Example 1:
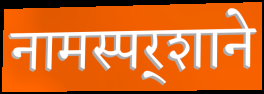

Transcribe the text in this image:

नामस्पर्शाने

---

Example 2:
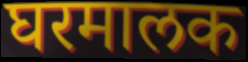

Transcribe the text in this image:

घरमालक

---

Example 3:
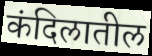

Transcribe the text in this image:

कंदिलातील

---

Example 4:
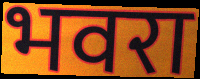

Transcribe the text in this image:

भवरा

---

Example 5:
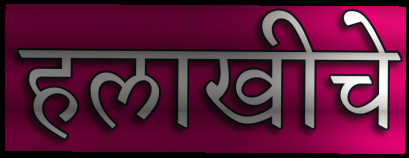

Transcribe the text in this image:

हलाखीचे